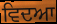
ਵਿਦਆ